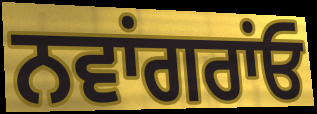
ਨਵਾਂਗਰਾਂਓ